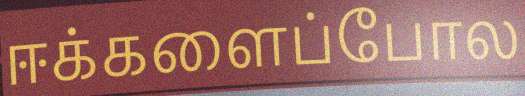
ஈக்களைப்போல